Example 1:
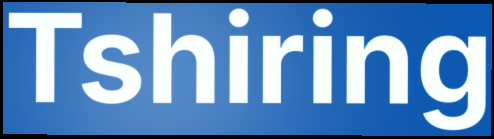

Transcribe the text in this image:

Tshiring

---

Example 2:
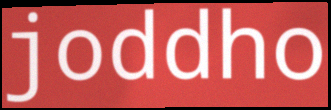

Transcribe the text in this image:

joddho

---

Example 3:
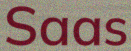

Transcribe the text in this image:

Saas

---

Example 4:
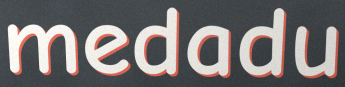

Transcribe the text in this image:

medadu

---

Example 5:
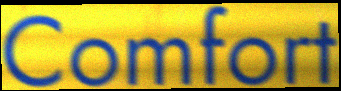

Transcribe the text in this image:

Comfort